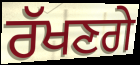
ਰੱਖਣਗੇ